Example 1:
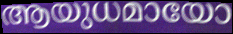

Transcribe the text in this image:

ആയുധമായോ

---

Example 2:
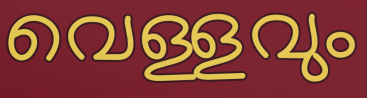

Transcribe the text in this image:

വെള്ളവും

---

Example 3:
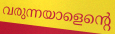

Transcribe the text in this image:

വരുന്നയാളെന്റെ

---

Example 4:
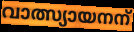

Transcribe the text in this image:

വാത്സ്യായനന്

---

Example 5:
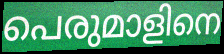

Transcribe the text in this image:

പെരുമാളിനെ